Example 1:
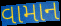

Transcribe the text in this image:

વામાન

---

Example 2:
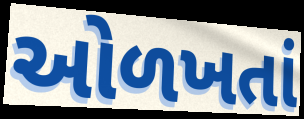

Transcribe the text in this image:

ઓળખતાં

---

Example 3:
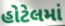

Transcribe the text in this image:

હોટેલમાં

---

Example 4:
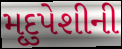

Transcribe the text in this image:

મૃદુપેશીની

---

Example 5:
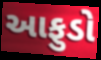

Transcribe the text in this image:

આફુડો